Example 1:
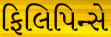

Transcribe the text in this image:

ફિલિપિન્સે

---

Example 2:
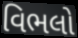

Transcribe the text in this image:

વિભલો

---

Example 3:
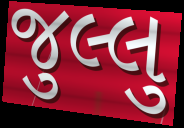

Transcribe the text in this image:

જુલ્લુ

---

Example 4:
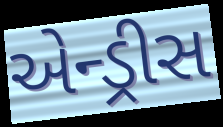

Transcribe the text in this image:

એન્ડ્રીસ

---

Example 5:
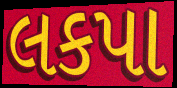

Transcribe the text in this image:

લકપા